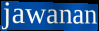
jawanan